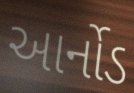
આર્નોડ